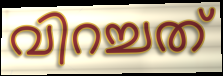
വിറച്ചത്